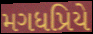
મગધપ્રિયે